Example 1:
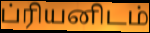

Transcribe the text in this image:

ப்ரியனிடம்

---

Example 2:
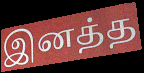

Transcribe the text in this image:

இனத்த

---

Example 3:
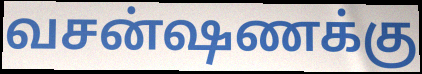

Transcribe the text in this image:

வசன்ஷணக்கு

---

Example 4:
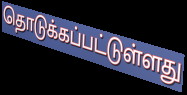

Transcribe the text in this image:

தொடுக்கப்பட்டுள்ளது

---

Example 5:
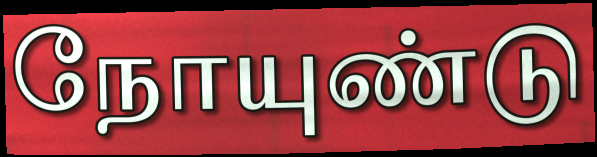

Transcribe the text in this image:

நோயுண்டு